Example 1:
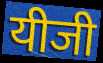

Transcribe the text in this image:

यीजी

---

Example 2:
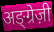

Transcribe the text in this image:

अङ्ग्रेज़ी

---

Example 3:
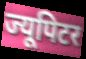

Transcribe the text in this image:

ज्यूपिटर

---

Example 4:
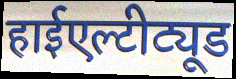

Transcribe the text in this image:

हाईएल्टीट्यूड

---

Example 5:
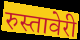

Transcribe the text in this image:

रुस्तावेरी